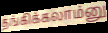
தங்கிக்கலாம்னு